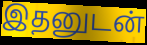
இதனுடன்